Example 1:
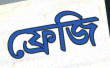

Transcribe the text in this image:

ফ্রেজি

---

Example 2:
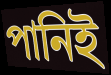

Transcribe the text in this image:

পানিই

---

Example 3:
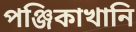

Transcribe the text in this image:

পঞ্জিকাখানি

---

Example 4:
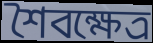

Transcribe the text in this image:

শৈবক্ষেত্র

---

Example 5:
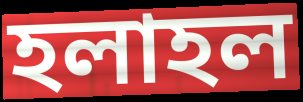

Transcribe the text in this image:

হলাহল